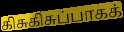
கிசுகிசுப்பாகக்